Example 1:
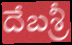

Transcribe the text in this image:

దేబశ్రీ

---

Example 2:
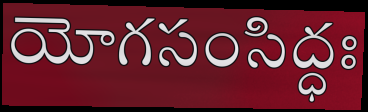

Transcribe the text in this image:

యోగసంసిద్ధః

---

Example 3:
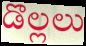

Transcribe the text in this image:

డొల్లలు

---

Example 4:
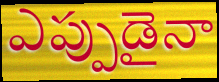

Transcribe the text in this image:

ఎప్పుడైనా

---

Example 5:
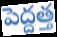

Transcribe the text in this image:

పెద్దత్త